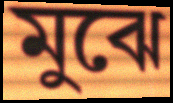
মুঝে